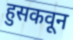
हुसकवून